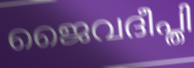
ജൈവദീപ്തി